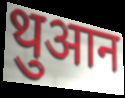
थुआन